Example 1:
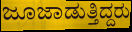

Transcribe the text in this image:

ಜೂಜಾಡುತ್ತಿದ್ದರು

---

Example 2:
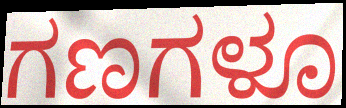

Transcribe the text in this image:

ಗಣಗಳೂ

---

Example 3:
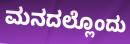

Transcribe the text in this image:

ಮನದಲ್ಲೊಂದು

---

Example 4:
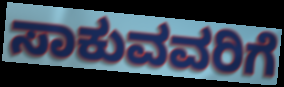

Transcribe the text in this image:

ಸಾಕುವವರಿಗೆ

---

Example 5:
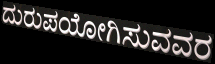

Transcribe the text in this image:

ದುರುಪಯೋಗಿಸುವವರ